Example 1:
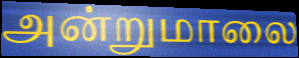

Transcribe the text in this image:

அன்றுமாலை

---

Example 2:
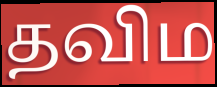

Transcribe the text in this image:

தவிம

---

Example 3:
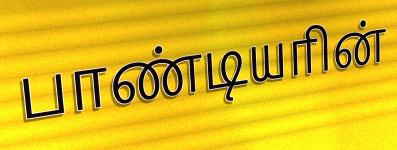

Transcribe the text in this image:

பாண்டியரின்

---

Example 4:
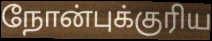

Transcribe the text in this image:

நோன்புக்குரிய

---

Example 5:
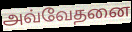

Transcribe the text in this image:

அவ்வேதனை